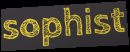
sophist